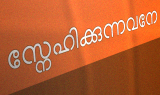
സ്നേഹിക്കുന്നവനേ